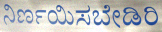
ನಿರ್ಣಯಿಸಬೇಡಿರಿ